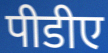
पीडीए